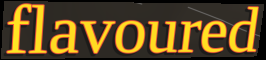
flavoured